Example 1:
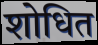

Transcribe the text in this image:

शोधित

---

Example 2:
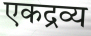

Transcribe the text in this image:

एकद्रव्य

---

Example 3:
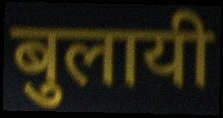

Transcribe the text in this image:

बुलायी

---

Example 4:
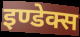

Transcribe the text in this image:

इण्डेक्स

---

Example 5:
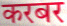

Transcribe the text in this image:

करबर